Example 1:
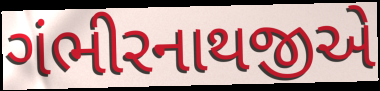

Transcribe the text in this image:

ગંભીરનાથજીએ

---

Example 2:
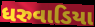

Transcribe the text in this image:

ધરુવાડિયા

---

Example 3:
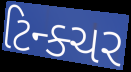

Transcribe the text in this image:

ટિન્ક્ચર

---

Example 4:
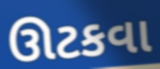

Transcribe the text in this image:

ઊટકવા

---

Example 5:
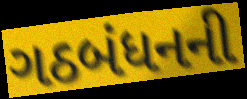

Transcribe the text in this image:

ગઠબંધનની